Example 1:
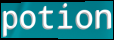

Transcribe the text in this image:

potion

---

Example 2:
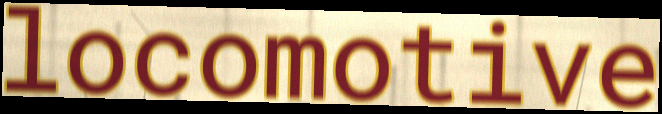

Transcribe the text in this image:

locomotive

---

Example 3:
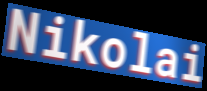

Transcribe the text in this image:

Nikolai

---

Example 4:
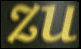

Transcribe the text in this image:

zu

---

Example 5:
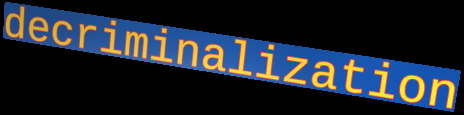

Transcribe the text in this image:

decriminalization